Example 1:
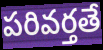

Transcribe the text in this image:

పరివర్తతే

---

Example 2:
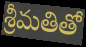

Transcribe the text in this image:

శ్రీమతితో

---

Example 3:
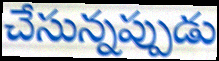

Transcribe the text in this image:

చేసున్నప్పుడు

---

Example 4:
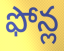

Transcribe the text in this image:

ఫోన్ల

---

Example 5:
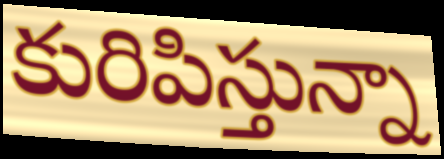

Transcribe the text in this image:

కురిపిస్తున్నా